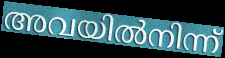
അവയിൽനിന്ന്